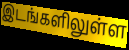
இடங்களிலுள்ள